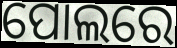
ପୋଲରେ